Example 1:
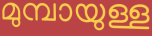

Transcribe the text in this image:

മുമ്പായുള്ള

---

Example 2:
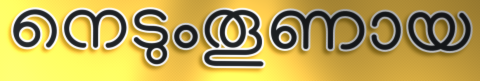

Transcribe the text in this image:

നെടുംതൂണായ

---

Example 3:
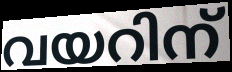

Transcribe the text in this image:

വയറിന്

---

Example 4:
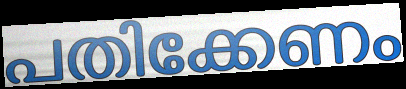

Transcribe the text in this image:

പതിക്കേണം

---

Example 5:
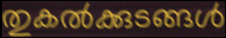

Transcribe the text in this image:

തുകൽക്കുടങ്ങൾ